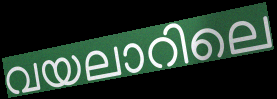
വയലാറിലെ